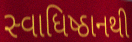
સ્વાધિષ્ઠાનથી